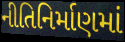
નીતિનિર્માણમાં